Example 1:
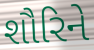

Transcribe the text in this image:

શૌરિને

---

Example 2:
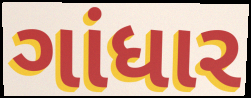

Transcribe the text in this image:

ગાંધાર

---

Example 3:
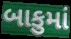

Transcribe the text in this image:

બાકુમાં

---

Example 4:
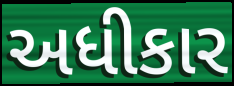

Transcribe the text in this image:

અધીકાર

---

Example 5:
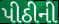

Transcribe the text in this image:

પીઠીની